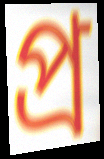
প্ৰ